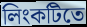
লিংকটিতে